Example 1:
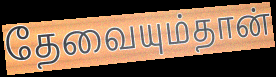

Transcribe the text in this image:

தேவையும்தான்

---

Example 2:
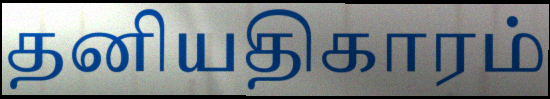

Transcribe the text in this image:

தனியதிகாரம்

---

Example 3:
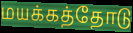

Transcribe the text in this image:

மயக்கத்தோடு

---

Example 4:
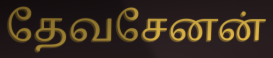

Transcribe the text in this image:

தேவசேனன்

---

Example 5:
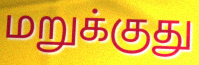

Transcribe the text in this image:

மறுக்குது